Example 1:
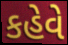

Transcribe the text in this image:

કહેવે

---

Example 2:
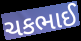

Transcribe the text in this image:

ચકભાઈ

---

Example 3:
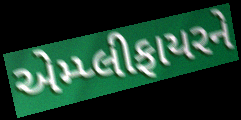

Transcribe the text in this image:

એમ્પ્લીફાયરને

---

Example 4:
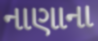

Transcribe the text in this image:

નાણાના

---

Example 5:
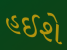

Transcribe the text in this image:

હઈશે